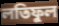
লতিফুল